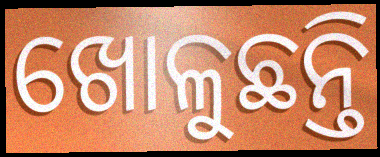
ଖୋଳୁଛନ୍ତି